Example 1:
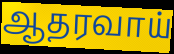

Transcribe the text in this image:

ஆதரவாய்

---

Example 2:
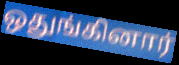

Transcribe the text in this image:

ஒதுங்கினார்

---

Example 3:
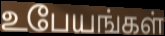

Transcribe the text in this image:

உபேயங்கள்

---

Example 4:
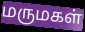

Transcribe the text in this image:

மருமகள்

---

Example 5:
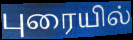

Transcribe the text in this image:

புரையில்